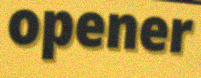
opener